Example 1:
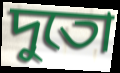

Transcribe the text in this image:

দুতো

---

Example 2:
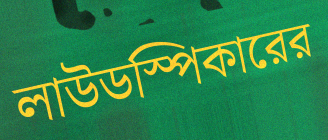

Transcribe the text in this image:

লাউডস্পিকারের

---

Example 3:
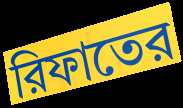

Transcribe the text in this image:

রিফাতের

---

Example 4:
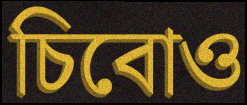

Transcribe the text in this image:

চিবোও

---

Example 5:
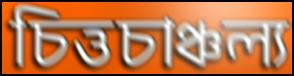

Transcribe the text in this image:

চিত্তচাঞ্চল্য